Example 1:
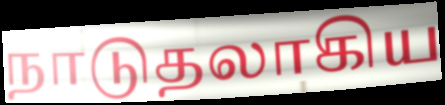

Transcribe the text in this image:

நாடுதலாகிய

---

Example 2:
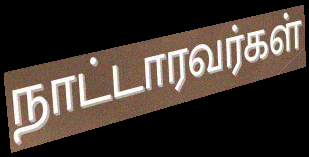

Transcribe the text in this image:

நாட்டாரவர்கள்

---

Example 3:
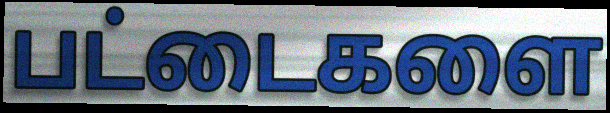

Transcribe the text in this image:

பட்டைகளை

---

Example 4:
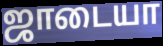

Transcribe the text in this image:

ஜாடையா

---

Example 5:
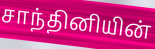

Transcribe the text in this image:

சாந்தினியின்